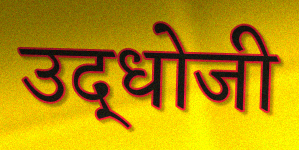
उद्धोजी